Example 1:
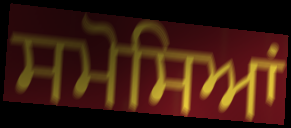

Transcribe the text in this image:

ਸਮੋਸਿਆਂ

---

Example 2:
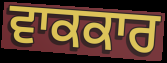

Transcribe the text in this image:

ਵਾਕਕਾਰ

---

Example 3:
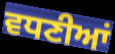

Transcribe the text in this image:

ਵਧਣੀਆਂ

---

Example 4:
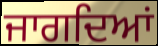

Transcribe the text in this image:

ਜਾਗਦਿਆਂ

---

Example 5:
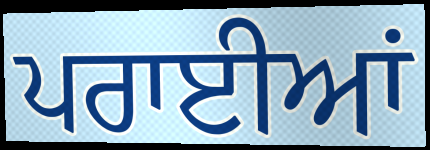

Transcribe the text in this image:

ਪਰਾਈਆਂ